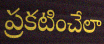
ప్రకటించేలా